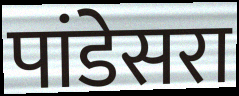
पांडेसरा